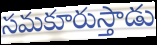
సమకూరుస్తాడు